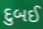
દુબઈ